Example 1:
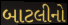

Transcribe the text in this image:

બાટલીનો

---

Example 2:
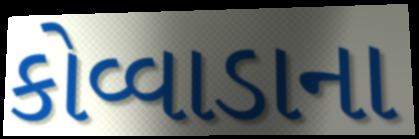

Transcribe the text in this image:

કોવ્વાડાના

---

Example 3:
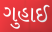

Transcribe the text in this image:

ગુહાઈ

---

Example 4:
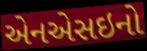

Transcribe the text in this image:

એનએસઇનો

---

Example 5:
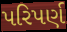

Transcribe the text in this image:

પરિપર્ણ